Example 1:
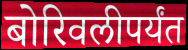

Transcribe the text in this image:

बोरिवलीपर्यंत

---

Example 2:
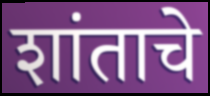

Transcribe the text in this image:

शांताचे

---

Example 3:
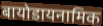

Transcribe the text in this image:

बायोडायनामिक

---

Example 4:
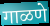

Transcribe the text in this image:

गाळणे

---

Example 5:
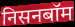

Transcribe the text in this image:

निसनबॉम